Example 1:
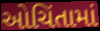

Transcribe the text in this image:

ઓચિંતામાં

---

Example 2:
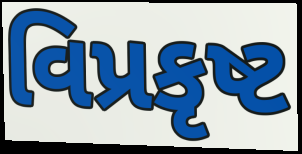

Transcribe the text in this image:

વિપ્રકૃષ્ટ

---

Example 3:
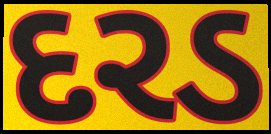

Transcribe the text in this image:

દરડ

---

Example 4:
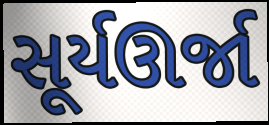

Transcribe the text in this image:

સૂર્યઊર્જા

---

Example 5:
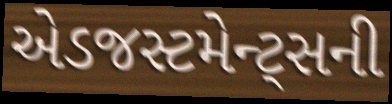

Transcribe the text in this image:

એડજસ્ટમેન્ટ્સની